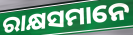
ରାକ୍ଷସମାନେ